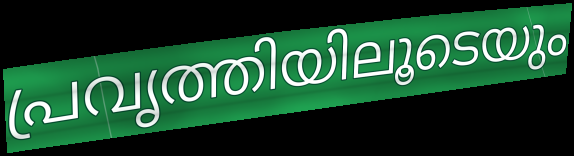
പ്രവൃത്തിയിലൂടെയും